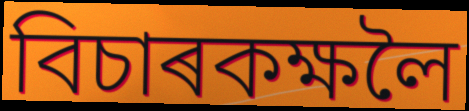
বিচাৰকক্ষলৈ